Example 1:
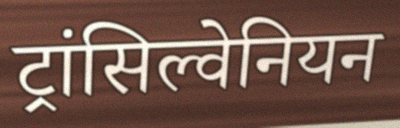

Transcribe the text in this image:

ट्रांसिल्वेनियन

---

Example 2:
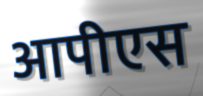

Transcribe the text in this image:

आपीएस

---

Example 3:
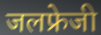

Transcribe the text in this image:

जलफ्रेजी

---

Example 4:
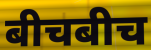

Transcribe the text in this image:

बीचबीच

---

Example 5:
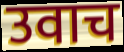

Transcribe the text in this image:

उवाच